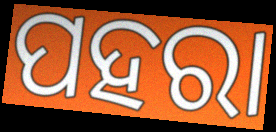
ପହରା